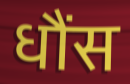
धौंस